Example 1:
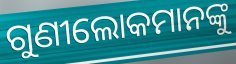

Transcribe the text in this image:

ଗୁଣୀଲୋକମାନଙ୍କୁ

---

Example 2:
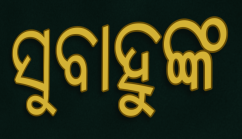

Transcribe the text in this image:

ସୁବାହୁଙ୍କ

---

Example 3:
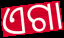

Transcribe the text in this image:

ଏଗା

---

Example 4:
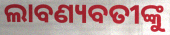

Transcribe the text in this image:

ଲାବଣ୍ୟବତୀଙ୍କୁ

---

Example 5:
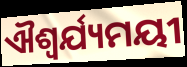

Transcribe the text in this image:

ଐଶ୍ୱର୍ଯ୍ୟମୟୀ